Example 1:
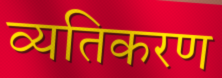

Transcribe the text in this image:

व्यतिकरण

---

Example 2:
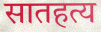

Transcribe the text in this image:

सातहत्य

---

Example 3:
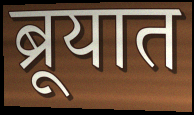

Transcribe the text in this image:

ब्रूयात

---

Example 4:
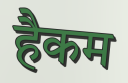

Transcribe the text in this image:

हैकम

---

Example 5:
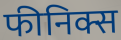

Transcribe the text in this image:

फीनिक्स